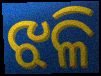
ଝଳି